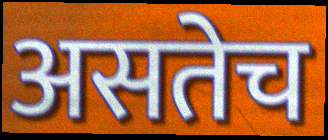
असतेच